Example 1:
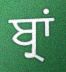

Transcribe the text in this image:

ਬ੍ਰਾਂ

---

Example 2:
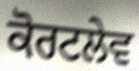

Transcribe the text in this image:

ਕੋਰਟਲੇਵ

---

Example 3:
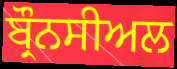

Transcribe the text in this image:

ਬ੍ਰੌਨਸੀਅਲ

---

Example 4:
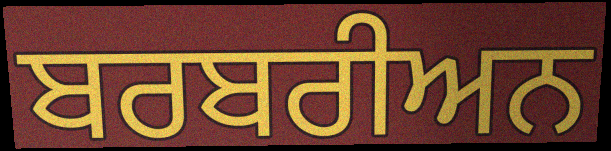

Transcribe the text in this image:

ਬਰਬਰੀਅਨ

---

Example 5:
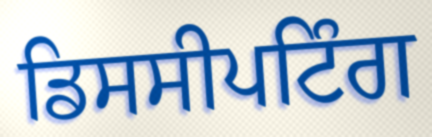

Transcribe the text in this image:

ਡਿਸਸੀਪਟਿੰਗ